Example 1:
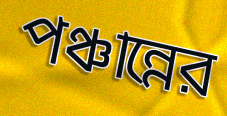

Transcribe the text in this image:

পঞ্চান্নের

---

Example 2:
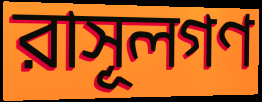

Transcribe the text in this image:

রাসূলগণ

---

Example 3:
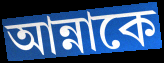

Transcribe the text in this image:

আন্নাকে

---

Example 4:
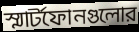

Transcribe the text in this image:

স্মার্টফোনগুলোর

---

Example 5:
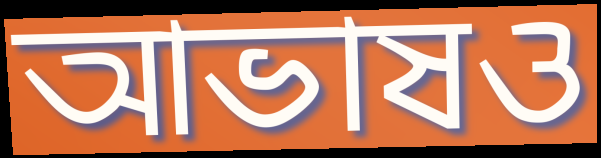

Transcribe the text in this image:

আভাষও